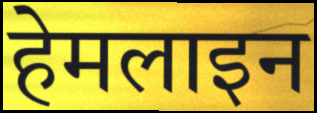
हेमलाइन